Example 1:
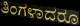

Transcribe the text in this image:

ತಿಂಗಳಾದರೂ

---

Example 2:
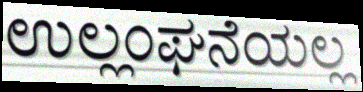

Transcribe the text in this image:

ಉಲ್ಲಂಘನೆಯಲ್ಲ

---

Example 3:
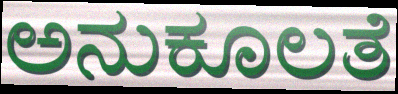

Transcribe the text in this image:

ಅನುಕೂಲತೆ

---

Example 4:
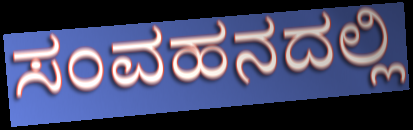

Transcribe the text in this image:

ಸಂವಹನದಲ್ಲಿ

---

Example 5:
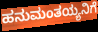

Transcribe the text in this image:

ಹನುಮಂತಯ್ಯನಿಗೆ